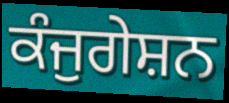
ਕੰਜੁਗੇਸ਼ਨ